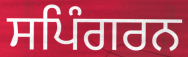
ਸਪਿੰਗਰਨ